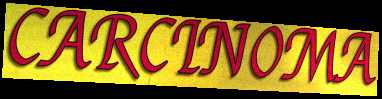
CARCINOMA